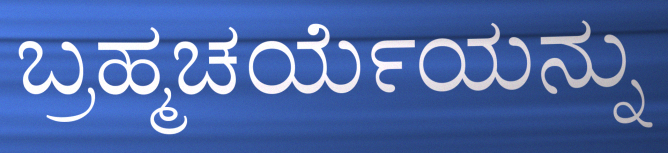
ಬ್ರಹ್ಮಚರ್ಯೆಯನ್ನು